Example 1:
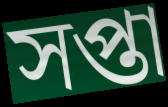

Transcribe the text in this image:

সপ্তা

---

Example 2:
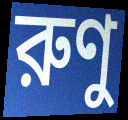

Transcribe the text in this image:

রুণু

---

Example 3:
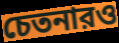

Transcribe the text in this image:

চেতনারও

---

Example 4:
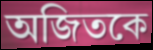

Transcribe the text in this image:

অজিতকে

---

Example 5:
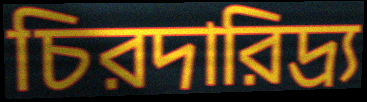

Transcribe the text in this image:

চিরদারিদ্র্য